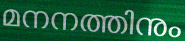
മനനത്തിനും